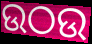
ଉଠଉ